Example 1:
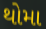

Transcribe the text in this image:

થોમા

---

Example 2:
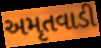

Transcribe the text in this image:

અમૃતવાડી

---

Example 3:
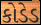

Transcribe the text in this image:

કોડેડ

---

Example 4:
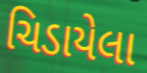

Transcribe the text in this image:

ચિડાયેલા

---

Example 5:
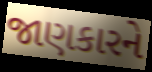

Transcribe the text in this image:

જાણકારને